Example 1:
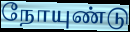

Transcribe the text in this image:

நோயுண்டு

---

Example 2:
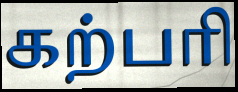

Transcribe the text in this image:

கற்பரி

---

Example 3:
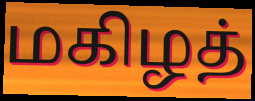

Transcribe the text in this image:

மகிழத்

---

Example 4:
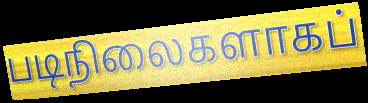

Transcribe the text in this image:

படிநிலைகளாகப்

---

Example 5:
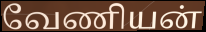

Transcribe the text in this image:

வேணியன்